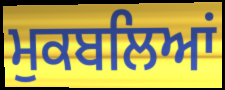
ਮੁਕਬਲਿਆਂ